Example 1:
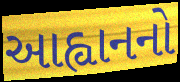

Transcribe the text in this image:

આહ્વાનનો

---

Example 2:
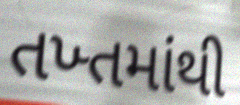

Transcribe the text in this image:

તખ્તમાંથી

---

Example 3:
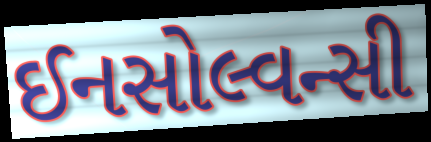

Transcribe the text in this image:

ઈનસોલ્વન્સી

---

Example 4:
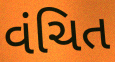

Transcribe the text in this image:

વંચિત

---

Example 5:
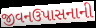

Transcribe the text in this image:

જીવનઉપાસનાની